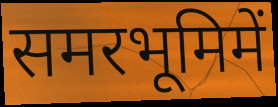
समरभूमिमें